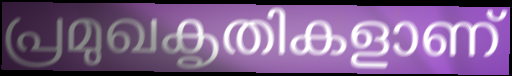
പ്രമുഖകൃതികളാണ്